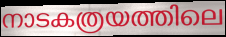
നാടകത്രയത്തിലെ